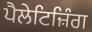
ਪੈਲੇਟਿਜ਼ਿੰਗ